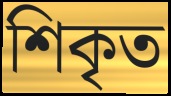
শিকৃত